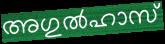
അഗുൽഹാസ്